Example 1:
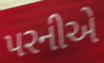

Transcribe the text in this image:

પરનીએ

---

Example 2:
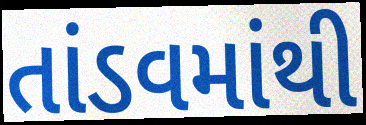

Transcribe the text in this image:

તાંડવમાંથી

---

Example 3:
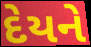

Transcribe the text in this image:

દેયને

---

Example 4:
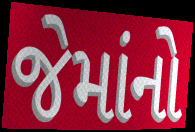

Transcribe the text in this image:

જેમાંનો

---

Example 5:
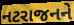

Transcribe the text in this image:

નટરાજનને